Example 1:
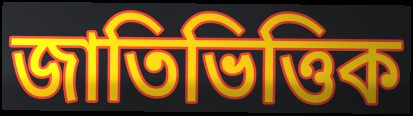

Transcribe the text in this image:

জাতিভিত্তিক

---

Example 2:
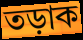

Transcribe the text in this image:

তড়াক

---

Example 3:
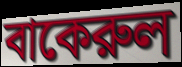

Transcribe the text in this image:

বাকেরুল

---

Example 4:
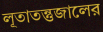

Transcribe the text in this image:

লূতাতন্তুজালের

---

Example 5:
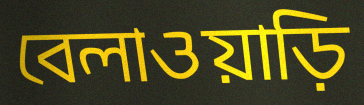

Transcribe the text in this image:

বেলাওয়াড়ি